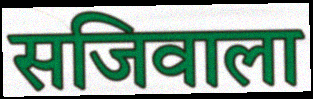
सजिवाला